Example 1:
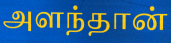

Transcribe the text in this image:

அளந்தான்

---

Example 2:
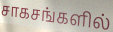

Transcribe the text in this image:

சாகசங்களில்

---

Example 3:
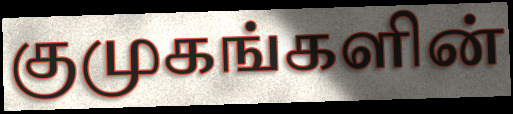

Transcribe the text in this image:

குமுகங்களின்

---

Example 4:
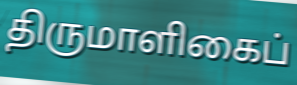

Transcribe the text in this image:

திருமாளிகைப்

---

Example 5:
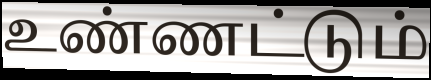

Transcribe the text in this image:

உண்ணட்டும்